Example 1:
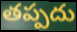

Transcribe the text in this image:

తప్పదు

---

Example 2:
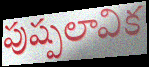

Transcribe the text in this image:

పుష్పలావిక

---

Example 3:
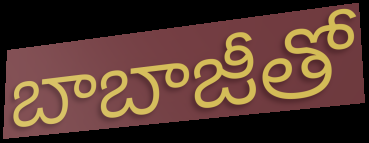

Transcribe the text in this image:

బాబాజీతో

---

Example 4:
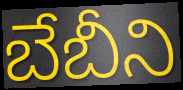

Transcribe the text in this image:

బేబీని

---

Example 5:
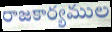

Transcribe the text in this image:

రాజకార్యముల